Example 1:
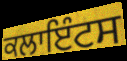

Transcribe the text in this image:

ਕਲਾਇੰਟਸ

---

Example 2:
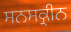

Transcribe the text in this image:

ਸਨਸਕ੍ਰੀਨ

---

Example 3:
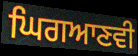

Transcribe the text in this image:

ਘਿਗਆਣਵੀ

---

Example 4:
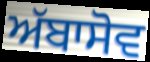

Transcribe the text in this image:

ਅੱਬਾਸੋਵ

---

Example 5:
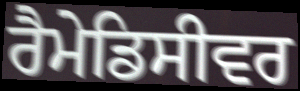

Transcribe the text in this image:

ਰੈਮੇਡਿਸੀਵਰ